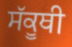
ਸੱਕੂਥੀ